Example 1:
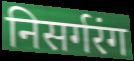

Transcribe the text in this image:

निसर्गरंग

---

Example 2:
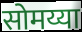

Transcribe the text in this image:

सोमय्या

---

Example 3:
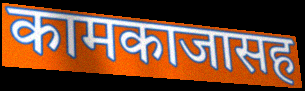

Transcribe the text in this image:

कामकाजासह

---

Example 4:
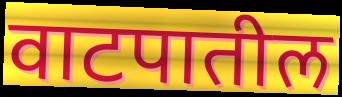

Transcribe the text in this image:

वाटपातील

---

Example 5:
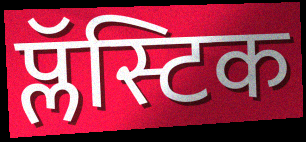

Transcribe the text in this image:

प्लॅस्टिक